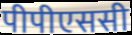
पीपीएससी